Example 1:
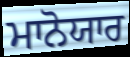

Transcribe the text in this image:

ਮਾਨੋਯਾਰ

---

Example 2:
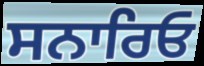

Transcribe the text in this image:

ਸਨਾਰਿਓ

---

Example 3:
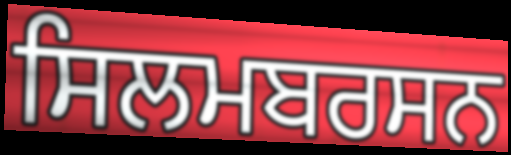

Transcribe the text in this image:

ਸਿਲਮਬਰਸਨ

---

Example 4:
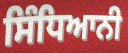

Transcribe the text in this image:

ਸਿੰਧਿਆਨੀ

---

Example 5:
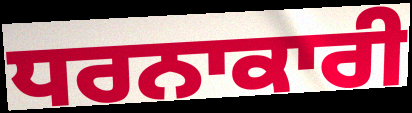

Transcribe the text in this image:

ਧਰਨਾਕਾਰੀ